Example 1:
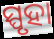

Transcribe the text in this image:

ସ୍ପୃହା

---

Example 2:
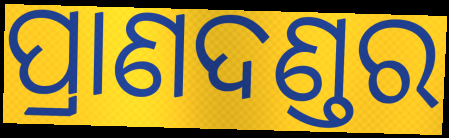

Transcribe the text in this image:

ପ୍ରାଣଦଣ୍ଡର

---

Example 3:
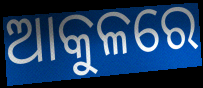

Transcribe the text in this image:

ଆକୁଳରେ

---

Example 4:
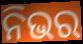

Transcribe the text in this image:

ନିଭର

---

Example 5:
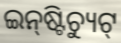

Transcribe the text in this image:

ଇନ୍‌ଷ୍ଟିଚ୍ୟୁଟ୍